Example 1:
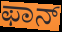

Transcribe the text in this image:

ಫಾನ್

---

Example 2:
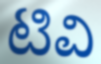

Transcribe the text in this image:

ಟಿವಿ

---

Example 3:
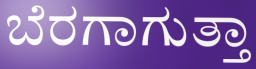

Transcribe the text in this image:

ಬೆರಗಾಗುತ್ತಾ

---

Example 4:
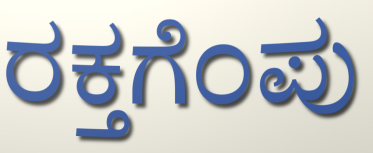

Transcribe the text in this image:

ರಕ್ತಗೆಂಪು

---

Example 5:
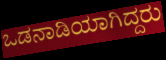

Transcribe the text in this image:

ಒಡನಾಡಿಯಾಗಿದ್ದರು